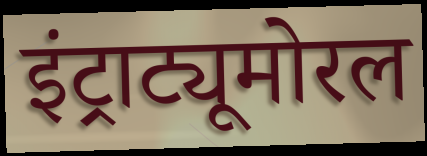
इंट्राट्यूमोरल